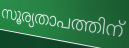
സൂര്യതാപത്തിന്